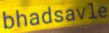
bhadsavle